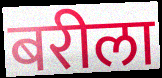
बरीला